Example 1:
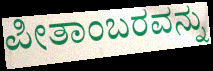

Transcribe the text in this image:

ಪೀತಾಂಬರವನ್ನು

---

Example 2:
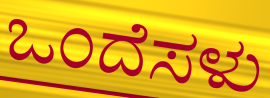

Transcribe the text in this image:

ಒಂದೆಸಳು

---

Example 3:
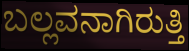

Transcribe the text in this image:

ಬಲ್ಲವನಾಗಿರುತ್ತಿ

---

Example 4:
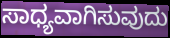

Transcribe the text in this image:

ಸಾಧ್ಯವಾಗಿಸುವುದು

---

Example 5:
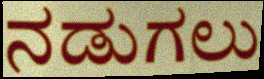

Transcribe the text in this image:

ನಡುಗಲು